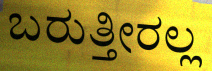
ಬರುತ್ತೀರಲ್ಲ